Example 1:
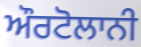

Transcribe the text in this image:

ਔਰਟੋਲਾਨੀ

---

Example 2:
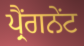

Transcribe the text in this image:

ਪ੍ਰੈਂਗਨੇਂਟ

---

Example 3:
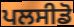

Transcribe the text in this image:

ਪਲਸੀਡੋ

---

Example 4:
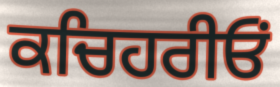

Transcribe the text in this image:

ਕਚਿਹਰੀਓਂ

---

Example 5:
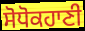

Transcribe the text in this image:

ਸੋਧੋਕਹਾਣੀ